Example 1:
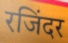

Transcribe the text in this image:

रजिंदर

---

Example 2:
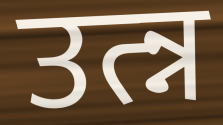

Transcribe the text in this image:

उत्न्न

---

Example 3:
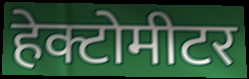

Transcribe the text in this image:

हेक्टोमीटर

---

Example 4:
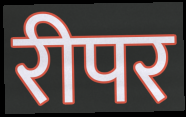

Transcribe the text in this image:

रीपर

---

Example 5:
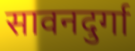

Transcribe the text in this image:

सावनदुर्गा